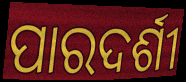
ପାରଦର୍ଶୀ